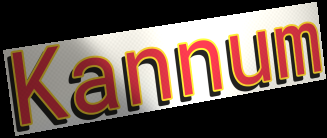
Kannum